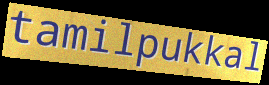
tamilpukkal